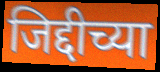
जिद्दीच्या